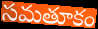
సమతూకం